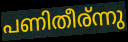
പണിതീര്ന്നു